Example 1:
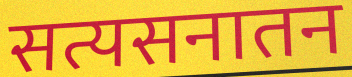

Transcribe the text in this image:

सत्यसनातन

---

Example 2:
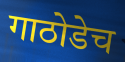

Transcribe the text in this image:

गाठोडेच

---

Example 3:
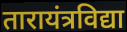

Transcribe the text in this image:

तारायंत्रविद्या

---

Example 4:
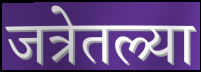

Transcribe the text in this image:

जत्रेतल्या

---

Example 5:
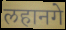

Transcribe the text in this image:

लहानगे